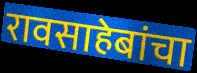
रावसाहेबांचा